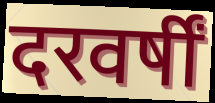
दरवर्षीं